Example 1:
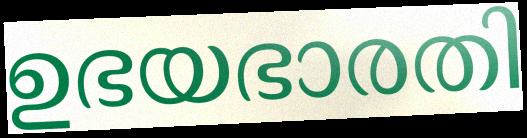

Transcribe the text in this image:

ഉഭയഭാരതി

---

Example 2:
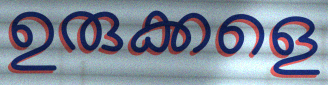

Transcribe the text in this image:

ഉരുക്കളെ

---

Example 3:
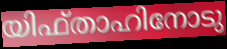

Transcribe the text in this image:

യിഫ്താഹിനോടു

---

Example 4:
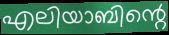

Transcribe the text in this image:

എലിയാബിന്റെ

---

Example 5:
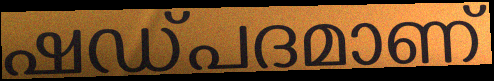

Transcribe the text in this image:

ഷഡ്പദമാണ്